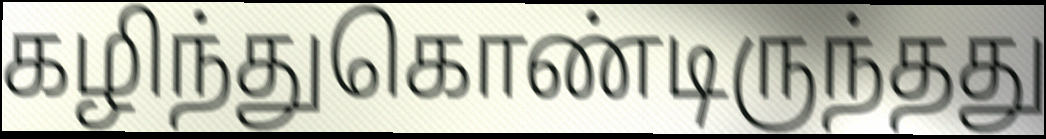
கழிந்துகொண்டிருந்தது